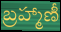
బ్రహ్మాణీ